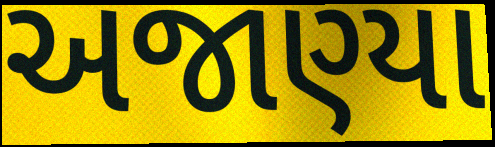
અજાણ્યા